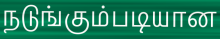
நடுங்கும்படியான